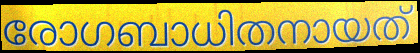
രോഗബാധിതനായത്